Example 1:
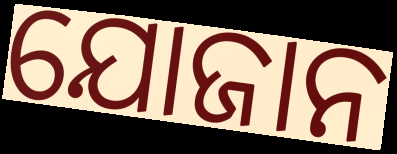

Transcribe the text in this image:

ଯୋଜାନ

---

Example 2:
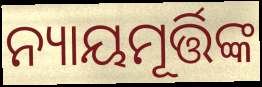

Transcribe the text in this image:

ନ୍ୟାୟମୂର୍ତ୍ତିଙ୍କ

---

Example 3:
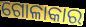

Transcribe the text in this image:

ଗୋଳାକାର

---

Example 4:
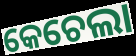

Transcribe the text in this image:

କେଚେଲା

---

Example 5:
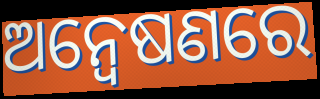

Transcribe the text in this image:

ଅନ୍ବେଷଣରେ